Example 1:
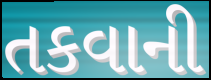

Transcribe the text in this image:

તકવાની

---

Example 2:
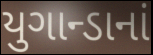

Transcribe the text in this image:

યુગાન્ડાનાં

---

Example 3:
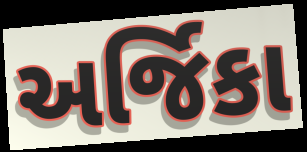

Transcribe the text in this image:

અર્જિકા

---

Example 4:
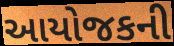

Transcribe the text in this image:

આયોજકની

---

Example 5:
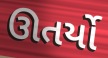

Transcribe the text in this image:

ઊતર્યો